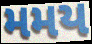
મમય